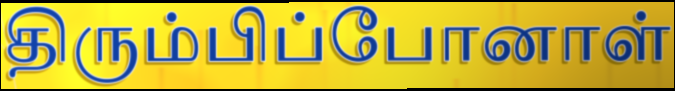
திரும்பிப்போனாள்